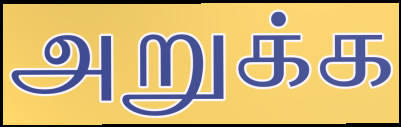
அறுக்க